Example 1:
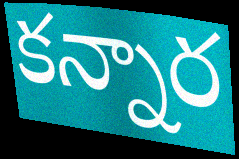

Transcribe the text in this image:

కన్నార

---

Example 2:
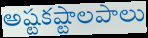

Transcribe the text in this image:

అష్టకష్టాలపాలు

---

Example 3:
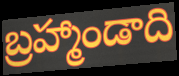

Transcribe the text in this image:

బ్రహ్మాండాది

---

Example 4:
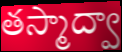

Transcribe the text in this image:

తస్మాద్వా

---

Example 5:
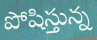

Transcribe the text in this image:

పోషిస్తున్న